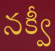
నక్వీ